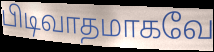
பிடிவாதமாகவே